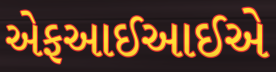
એફઆઈઆઈએ